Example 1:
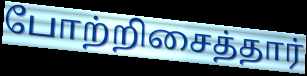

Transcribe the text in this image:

போற்றிசைத்தார்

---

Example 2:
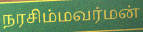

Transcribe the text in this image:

நரசிம்மவர்மன்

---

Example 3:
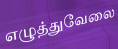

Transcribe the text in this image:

எழுத்துவேலை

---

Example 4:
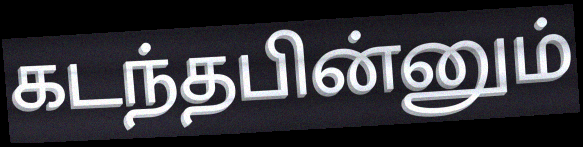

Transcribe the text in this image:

கடந்தபின்னும்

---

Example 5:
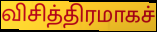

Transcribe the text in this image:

விசித்திரமாகச்